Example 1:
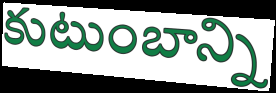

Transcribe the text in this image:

కుటుంబాన్ని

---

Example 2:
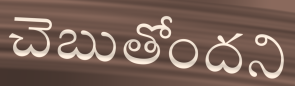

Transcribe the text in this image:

చెబుతోందని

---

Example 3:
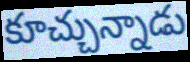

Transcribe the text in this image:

కూచ్చున్నాడు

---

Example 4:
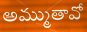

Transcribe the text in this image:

అమ్ముతావో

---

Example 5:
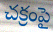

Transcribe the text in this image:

చక్రంపై